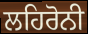
ਲਹਿਰੋਨੀ